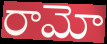
రామో